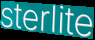
sterlite